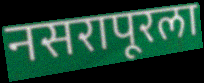
नसरापूरला